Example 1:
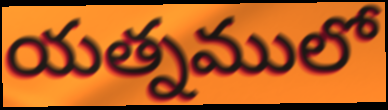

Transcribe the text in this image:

యత్నములో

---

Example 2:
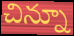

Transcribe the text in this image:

చిన్నూ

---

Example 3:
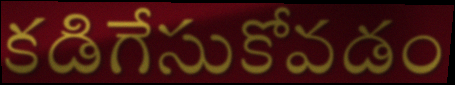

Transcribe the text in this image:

కడిగేసుకోవడం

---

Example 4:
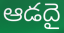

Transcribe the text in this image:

ఆడదై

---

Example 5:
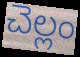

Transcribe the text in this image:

చెల్లం